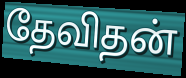
தேவிதன்